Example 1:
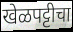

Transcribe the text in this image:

खेळपट्टीचा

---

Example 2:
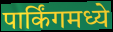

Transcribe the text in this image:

पार्किंगमध्ये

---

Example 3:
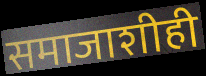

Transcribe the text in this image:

समाजाशीही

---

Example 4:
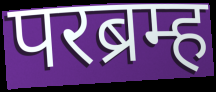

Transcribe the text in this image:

परब्रम्ह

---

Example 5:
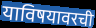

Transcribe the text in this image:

याविषयावरची